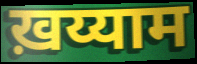
ख़य्याम